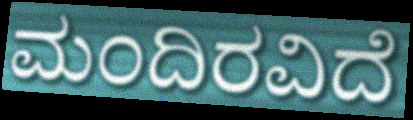
ಮಂದಿರವಿದೆ